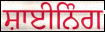
ਸ਼ਾਈਨਿੰਗ